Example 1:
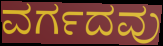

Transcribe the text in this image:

ವರ್ಗದವು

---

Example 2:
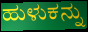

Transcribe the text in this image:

ಹುಳುಕನ್ನು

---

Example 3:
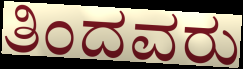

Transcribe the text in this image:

ತಿಂದವರು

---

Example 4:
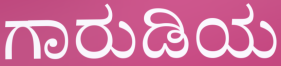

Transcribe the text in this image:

ಗಾರುಡಿಯ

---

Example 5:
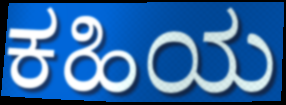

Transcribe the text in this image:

ಕಹಿಯ